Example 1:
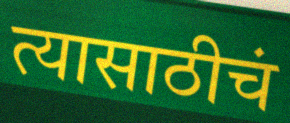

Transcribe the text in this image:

त्यासाठीचं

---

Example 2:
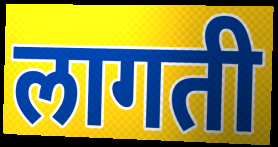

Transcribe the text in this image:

लागती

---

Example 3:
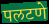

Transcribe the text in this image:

पलटणे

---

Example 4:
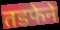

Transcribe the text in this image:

तडफेने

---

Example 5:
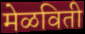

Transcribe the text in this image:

मेळविती